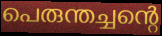
പെരുന്തച്ചന്റെ